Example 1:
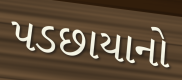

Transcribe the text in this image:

પડછાયાનો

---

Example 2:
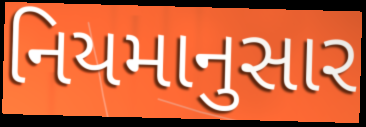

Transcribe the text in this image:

નિયમાનુસાર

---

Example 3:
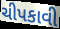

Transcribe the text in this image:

ચીપકાવી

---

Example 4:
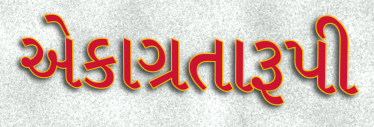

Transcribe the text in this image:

એકાગ્રતારૂપી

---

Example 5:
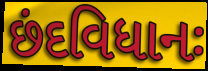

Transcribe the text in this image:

છંદવિધાનઃ